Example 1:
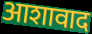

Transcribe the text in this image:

आशावाद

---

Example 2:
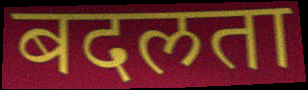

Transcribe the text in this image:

बदलता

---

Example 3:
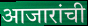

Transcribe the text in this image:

आजारांची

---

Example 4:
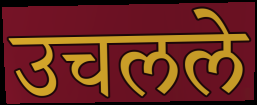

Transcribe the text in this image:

उचलले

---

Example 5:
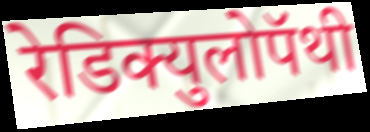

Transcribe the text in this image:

रेडिक्युलोपॅथी